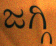
ಜಗ್ಗಿ